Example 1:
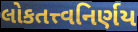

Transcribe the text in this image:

લોકતત્ત્વનિર્ણય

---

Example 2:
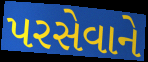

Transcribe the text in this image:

પરસેવાને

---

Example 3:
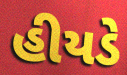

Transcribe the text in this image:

હીયડે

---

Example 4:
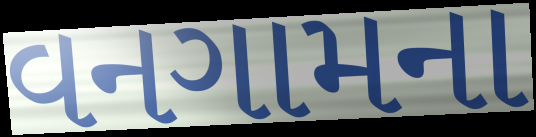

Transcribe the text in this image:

વનગામના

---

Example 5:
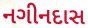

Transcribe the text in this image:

નગીનદાસ